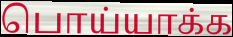
பொய்யாக்க